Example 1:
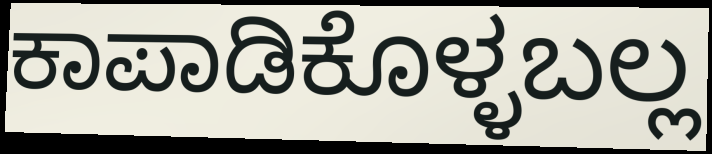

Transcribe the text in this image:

ಕಾಪಾಡಿಕೊಳ್ಳಬಲ್ಲ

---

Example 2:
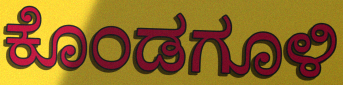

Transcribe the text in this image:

ಕೊಂಡಗೂಳಿ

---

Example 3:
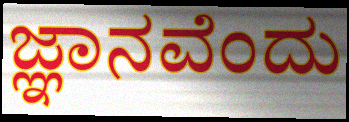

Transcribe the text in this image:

ಜ್ಞಾನವೆಂದು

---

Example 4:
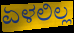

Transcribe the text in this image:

ಏಳಲಿಲ್ಲ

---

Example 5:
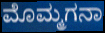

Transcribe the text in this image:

ಮೊಮ್ಮಗನಾ